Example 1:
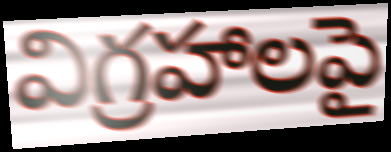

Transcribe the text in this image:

విగ్రహాలపై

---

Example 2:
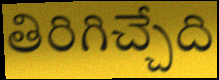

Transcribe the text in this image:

తిరిగిచ్చేది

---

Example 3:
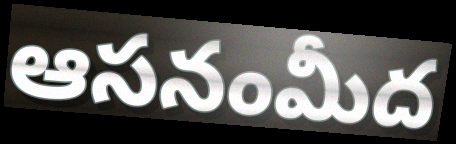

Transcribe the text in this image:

ఆసనంమీద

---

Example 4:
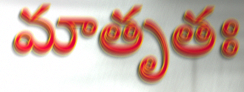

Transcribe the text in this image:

మాతృతః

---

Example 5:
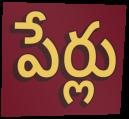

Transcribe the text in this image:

పేర్లు